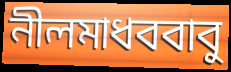
নীলমাধববাবু